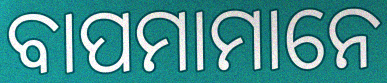
ବାପମାମାନେ